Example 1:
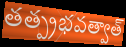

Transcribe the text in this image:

తత్ప్రభవత్వాత్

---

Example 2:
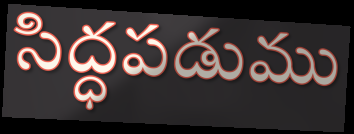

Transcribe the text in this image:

సిద్ధపడుము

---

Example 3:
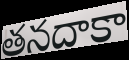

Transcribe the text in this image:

తనదాకా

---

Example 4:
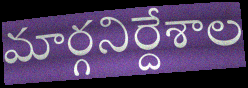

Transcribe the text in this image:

మార్గనిర్దేశాల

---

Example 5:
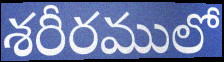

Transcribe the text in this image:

శరీరములో